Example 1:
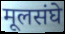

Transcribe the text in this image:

मूलसंघे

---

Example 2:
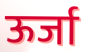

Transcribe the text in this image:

ऊर्जा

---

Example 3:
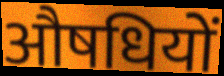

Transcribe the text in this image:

औषधियों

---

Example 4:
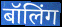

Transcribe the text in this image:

बॉलिंग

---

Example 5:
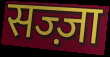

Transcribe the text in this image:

सज्ज़ा